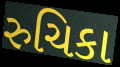
રુચિકા